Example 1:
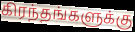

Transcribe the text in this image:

கிரந்தங்களுக்கு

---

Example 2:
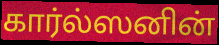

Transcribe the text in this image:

கார்ல்ஸனின்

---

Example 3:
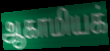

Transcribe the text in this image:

ஆகாமியக்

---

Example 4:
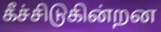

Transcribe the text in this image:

கீச்சிடுகின்றன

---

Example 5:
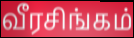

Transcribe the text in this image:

வீரசிங்கம்